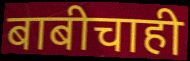
बाबीचाही